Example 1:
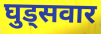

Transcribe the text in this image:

घुड्सवार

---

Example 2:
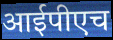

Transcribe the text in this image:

आईपीएच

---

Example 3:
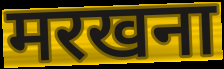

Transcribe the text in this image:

मरखना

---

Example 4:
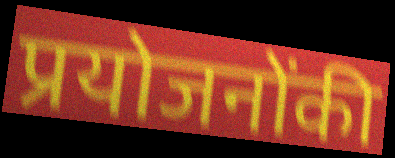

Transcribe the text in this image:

प्रयोजनोंकी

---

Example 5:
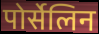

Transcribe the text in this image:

पोर्सेलिन